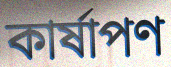
কার্ষাপণ